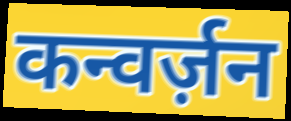
कन्वर्ज़न